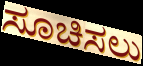
ಸೂಚಿಸಲು